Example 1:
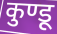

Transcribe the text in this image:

कुण्डू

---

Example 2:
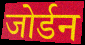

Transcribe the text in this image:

जोर्डन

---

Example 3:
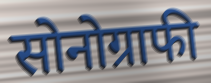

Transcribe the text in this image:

सोनोग्राफी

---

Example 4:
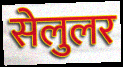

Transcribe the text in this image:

सेलुलर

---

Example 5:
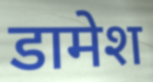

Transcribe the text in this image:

डामेश